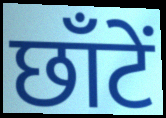
छाँटें